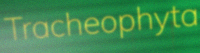
Tracheophyta